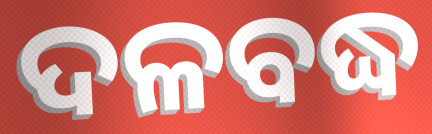
ଦଳବଦ୍ଧ